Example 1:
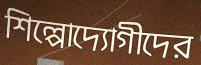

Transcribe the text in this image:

শিল্পোদ্যোগীদের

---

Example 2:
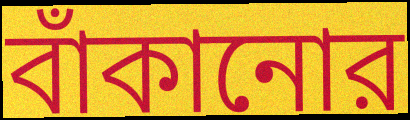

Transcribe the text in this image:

বাঁকানোর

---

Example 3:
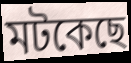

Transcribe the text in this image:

মটকেছে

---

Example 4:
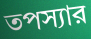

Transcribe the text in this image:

তপস্যার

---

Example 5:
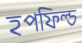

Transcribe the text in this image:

হপফিল্ড